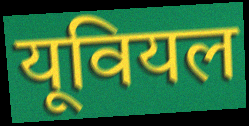
यूवियल